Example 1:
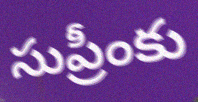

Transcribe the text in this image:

సుప్రీంకు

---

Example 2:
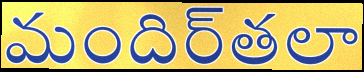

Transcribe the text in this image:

మందిర్‌తలా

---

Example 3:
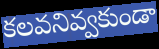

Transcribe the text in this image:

కలవనివ్వకుండా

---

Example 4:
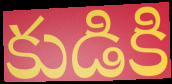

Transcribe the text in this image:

కుడికి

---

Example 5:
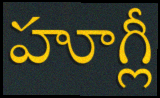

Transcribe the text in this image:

హూగ్లీ